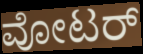
ವೋಟರ್